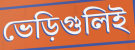
ভেড়িগুলিই